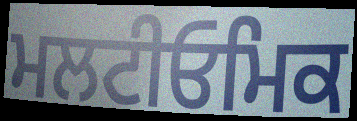
ਮਲਟੀਓਮਿਕ